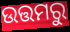
ଉତ୍ତମରୁ